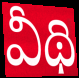
వీథి